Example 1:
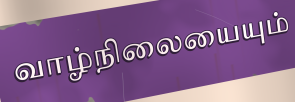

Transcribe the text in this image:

வாழ்நிலையையும்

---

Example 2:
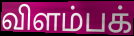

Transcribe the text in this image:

விளம்பக்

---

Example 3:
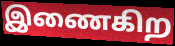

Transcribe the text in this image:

இணைகிற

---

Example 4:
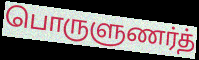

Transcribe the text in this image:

பொருளுணர்த்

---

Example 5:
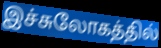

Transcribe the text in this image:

இச்சுலோகத்தில்